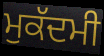
ਮੁਕੱਦਮੀ